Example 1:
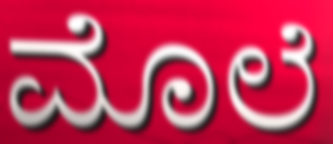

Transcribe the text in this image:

ಮೊಲೆ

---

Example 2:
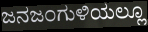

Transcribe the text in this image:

ಜನಜಂಗುಳಿಯಲ್ಲೂ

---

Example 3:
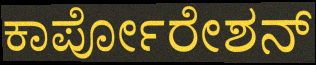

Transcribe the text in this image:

ಕಾರ್ಪೋರೇಶನ್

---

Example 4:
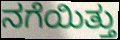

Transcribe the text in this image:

ನಗೆಯಿತ್ತು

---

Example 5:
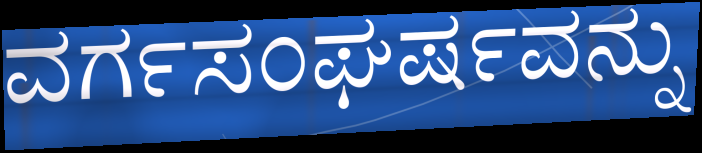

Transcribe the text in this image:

ವರ್ಗಸಂಘರ್ಷವನ್ನು